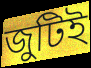
জুটিই